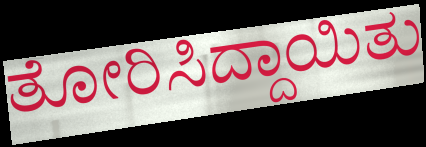
ತೋರಿಸಿದ್ದಾಯಿತು